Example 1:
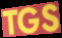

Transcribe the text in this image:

TGS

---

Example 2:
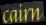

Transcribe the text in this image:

cairn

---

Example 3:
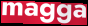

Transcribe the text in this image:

magga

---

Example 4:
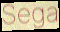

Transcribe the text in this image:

Sega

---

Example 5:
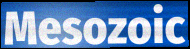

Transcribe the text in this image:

Mesozoic